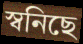
স্বনিছে